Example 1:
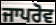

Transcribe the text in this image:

ਜਾਪਰੋਵ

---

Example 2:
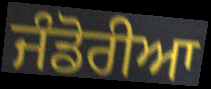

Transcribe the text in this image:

ਜੰਡੋਰੀਆ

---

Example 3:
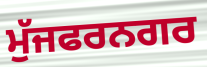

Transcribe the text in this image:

ਮੁੱਜਫਰਨਗਰ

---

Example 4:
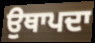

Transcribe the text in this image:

ਉਥਾਪਦਾ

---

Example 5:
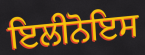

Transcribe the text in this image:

ਇਲੀਨੋਇਸ